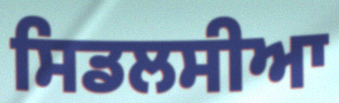
ਸਿਡਲਸੀਆ